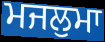
ਮਜਲੁਮਾ